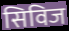
सिविज